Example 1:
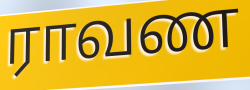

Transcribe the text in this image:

ராவண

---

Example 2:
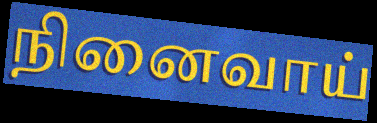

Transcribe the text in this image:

நினைவாய்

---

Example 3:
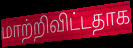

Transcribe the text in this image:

மாற்றிவிட்டதாக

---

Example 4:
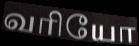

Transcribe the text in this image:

வரியோ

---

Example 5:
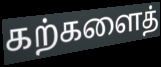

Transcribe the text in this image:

கற்களைத்